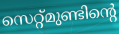
സെറ്റ്മുണ്ടിന്റെ